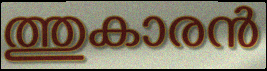
ത്തുകാരൻ